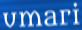
umari